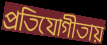
প্রতিযোগীতায়